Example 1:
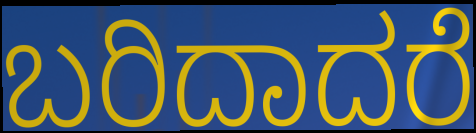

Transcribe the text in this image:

ಬರಿದಾದರೆ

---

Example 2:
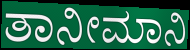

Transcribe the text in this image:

ತಾನೀಮಾನಿ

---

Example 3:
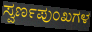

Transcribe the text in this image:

ಸ್ವರ್ಣಪುಂಖಗಳ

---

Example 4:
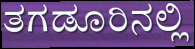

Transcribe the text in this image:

ತಗಡೂರಿನಲ್ಲಿ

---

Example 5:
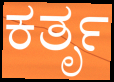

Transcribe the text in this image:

ಕರ್ತೃ